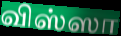
விஸ்ஸா